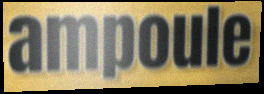
ampoule